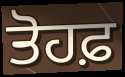
ਤੋਹਫ਼